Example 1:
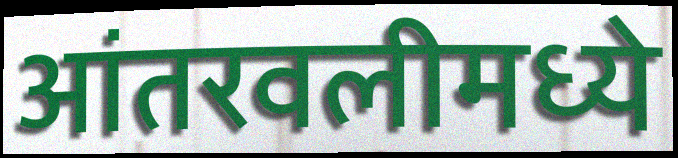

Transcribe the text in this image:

आंतरवलीमध्ये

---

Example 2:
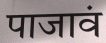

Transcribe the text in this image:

पाजावं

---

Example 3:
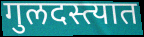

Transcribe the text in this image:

गुलदस्त्यात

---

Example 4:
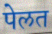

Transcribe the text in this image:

पेलत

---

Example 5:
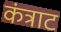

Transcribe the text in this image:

कंत्राट